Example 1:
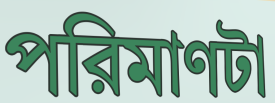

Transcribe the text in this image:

পরিমাণটা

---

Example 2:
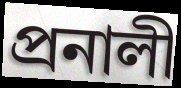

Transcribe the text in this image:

প্রনালী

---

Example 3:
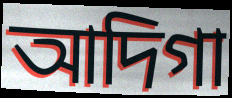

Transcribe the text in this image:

আদিগা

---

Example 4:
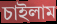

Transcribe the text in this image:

চাইলাম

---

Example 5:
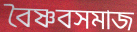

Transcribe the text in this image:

বৈষ্ণবসমাজ